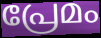
പ്രേമം